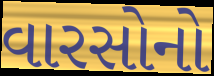
વારસોનો